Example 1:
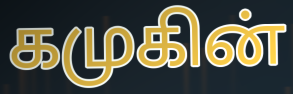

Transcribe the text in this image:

கமுகின்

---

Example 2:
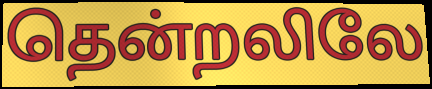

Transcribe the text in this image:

தென்றலிலே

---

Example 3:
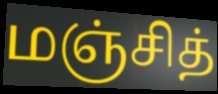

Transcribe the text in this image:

மஞ்சித்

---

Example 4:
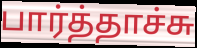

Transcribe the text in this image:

பார்த்தாச்சு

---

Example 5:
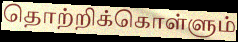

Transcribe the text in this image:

தொற்றிக்கொள்ளும்